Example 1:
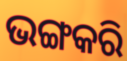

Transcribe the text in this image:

ଭଙ୍ଗକରି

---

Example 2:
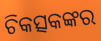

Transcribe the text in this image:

ଚିକତ୍ସକଙ୍କର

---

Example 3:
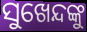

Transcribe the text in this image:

ସୁଖେନ୍ଦଙ୍କୁ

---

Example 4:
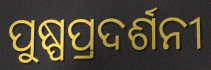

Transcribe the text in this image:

ପୁଷ୍ପପ୍ରଦର୍ଶନୀ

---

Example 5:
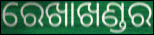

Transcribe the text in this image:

ରେଖାଖଣ୍ଡର